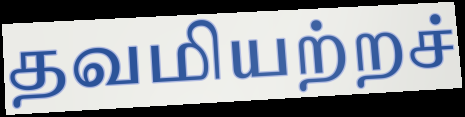
தவமியற்றச்